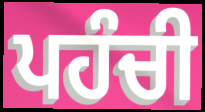
ਪਹੰਚੀ